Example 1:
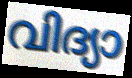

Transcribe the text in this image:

വിദ്യാ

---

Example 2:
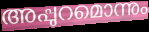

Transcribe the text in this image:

അപ്പുറമൊന്നും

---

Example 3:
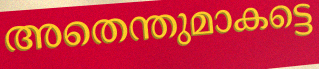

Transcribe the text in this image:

അതെന്തുമാകട്ടെ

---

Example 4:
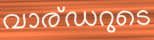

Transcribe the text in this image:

വാര്ഡറുടെ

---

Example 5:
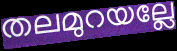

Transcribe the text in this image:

തലമുറയല്ലേ